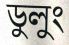
ডুলুং